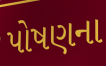
પોષણના